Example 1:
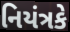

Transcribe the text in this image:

નિયંત્રકે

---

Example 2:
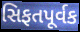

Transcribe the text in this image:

સિફતપૂર્વક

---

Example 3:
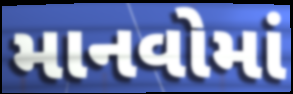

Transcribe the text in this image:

માનવોમાં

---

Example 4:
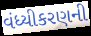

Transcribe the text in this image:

વંધ્યીકરણની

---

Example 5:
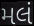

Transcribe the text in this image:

મલં